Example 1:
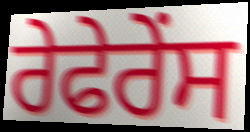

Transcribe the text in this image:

ਰੇਫੇਰੇਂਸ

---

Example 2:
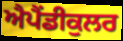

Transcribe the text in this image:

ਐਪੈਂਡੀਕੁਲਰ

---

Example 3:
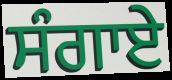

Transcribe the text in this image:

ਸੰਗਾਏ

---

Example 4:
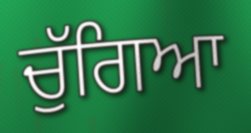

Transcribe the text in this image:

ਚੁੱਗਿਆ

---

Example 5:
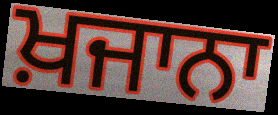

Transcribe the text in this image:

ਖ਼ਜਾਨਾ